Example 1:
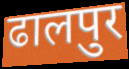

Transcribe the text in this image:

ढालपुर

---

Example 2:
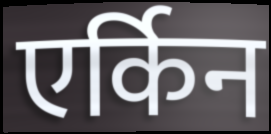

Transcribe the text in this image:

एर्किन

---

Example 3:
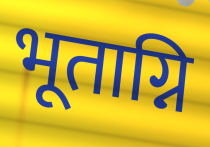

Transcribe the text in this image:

भूताग्नि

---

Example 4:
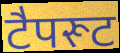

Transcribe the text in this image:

टैपरूट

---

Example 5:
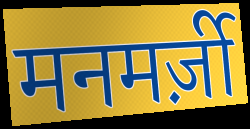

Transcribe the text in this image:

मनमर्ज़ी